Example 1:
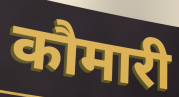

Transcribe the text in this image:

कौमारी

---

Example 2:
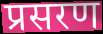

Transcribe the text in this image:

प्रसरण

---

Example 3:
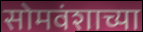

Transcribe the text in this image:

सोमवंशाच्या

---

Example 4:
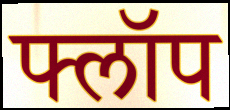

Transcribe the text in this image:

फ्लॉप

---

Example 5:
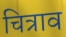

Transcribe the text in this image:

चित्राव